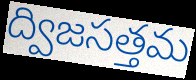
ద్విజసత్తమ